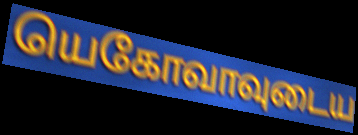
யெகோவாவுடைய